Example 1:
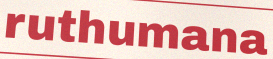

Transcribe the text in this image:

ruthumana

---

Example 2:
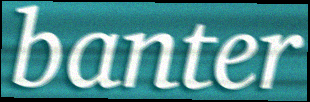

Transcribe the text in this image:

banter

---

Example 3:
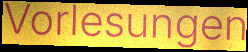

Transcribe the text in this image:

Vorlesungen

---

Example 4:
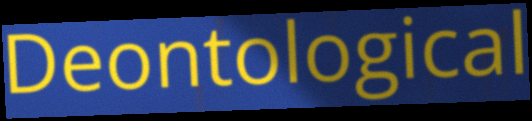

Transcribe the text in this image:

Deontological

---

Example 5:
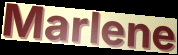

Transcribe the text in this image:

Marlene